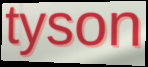
tyson